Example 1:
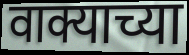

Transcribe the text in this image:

वाक्याच्या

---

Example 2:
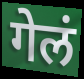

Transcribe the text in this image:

गेलं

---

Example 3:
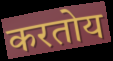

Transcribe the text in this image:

करतोय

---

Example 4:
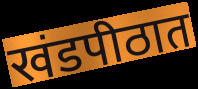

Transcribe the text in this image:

खंडपीठात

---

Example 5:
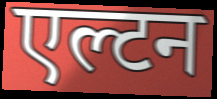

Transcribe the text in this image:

एल्टन